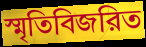
স্মৃতিবিজরিত